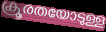
ക്രൂരതയോടുള്ള